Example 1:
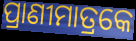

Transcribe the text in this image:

ପ୍ରାଣୀମାତ୍ରକେ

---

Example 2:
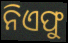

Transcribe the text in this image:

ନିଏଫୁ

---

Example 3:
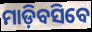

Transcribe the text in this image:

ମାଡ଼ିବସିବେ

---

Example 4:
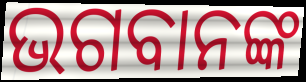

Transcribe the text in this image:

ଭଗବାନଙ୍କ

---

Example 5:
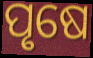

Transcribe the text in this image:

ପୃଷେ